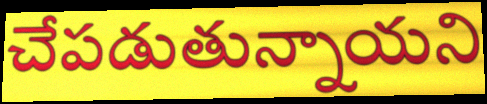
చేపడుతున్నాయని